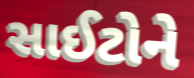
સાઈટોને